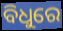
ବିଧୁରେ